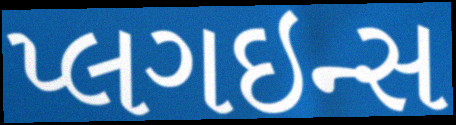
પ્લગઇન્સ